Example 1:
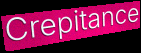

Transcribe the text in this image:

Crepitance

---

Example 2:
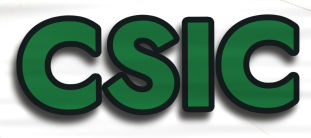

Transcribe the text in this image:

CSIC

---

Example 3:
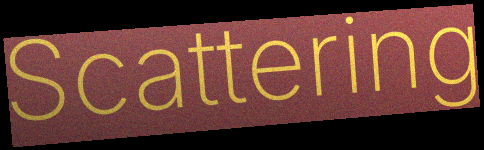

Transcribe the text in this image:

Scattering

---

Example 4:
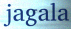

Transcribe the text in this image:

jagala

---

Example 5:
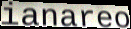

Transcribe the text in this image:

ianareo